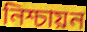
নিশ্চায়ন